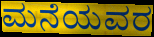
ಮನೆಯವರ